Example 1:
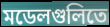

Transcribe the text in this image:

মডেলগুলিতে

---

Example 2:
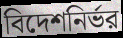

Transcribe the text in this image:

বিদেশনির্ভর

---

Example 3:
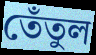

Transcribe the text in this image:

তেঁতুল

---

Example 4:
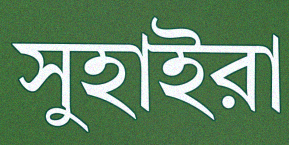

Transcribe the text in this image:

সুহাইরা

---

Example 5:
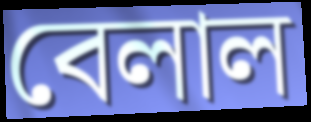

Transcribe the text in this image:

বেলাল